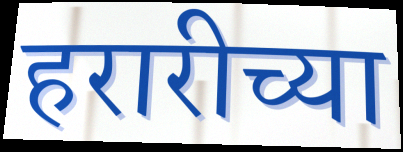
हरारीच्या